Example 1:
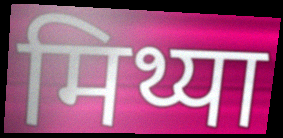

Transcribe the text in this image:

मिथ्या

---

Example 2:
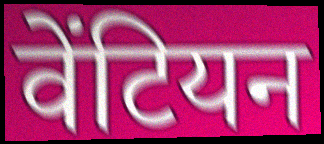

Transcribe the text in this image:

वेंटियन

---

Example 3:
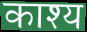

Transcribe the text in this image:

काश्य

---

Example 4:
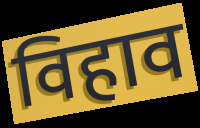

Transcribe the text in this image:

विहाव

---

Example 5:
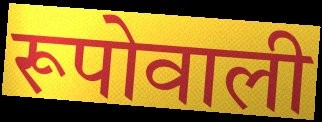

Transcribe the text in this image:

रूपोवाली